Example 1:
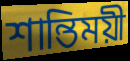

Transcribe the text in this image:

শান্তিময়ী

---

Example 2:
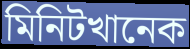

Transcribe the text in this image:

মিনিটখানেক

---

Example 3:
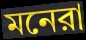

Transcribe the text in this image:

মনেরা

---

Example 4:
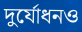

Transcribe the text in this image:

দুর্যোধনও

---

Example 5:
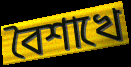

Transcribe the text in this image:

বৈশাখে